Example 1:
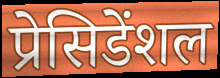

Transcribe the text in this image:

प्रेसिडेंशल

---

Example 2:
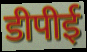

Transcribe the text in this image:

डीपीई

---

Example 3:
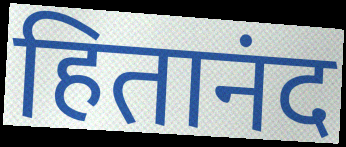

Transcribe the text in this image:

हितानंद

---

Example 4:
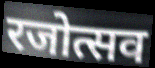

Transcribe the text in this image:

रजोत्सव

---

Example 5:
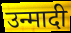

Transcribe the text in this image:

उन्मादी